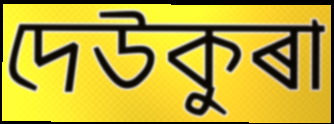
দেউকুৰা